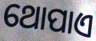
ଥୋପାଏ